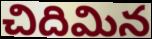
చిదిమిన